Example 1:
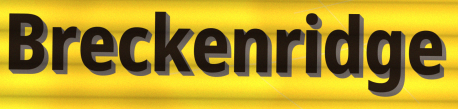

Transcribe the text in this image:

Breckenridge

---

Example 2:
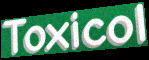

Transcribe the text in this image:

Toxicol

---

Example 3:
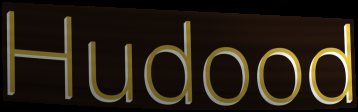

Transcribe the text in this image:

Hudood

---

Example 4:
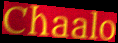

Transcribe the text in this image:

Chaalo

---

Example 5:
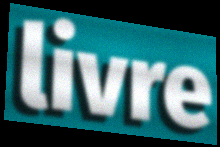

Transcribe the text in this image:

livre